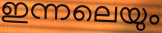
ഇന്നലെയും